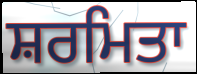
ਸ਼ਰਮਿਤਾ